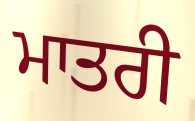
ਮਾਤਰੀ